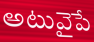
అటువైపే